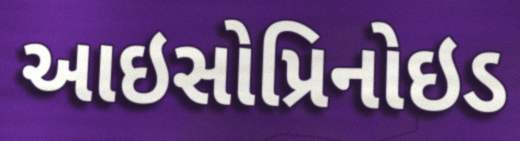
આઇસોપ્રિનોઇડ